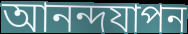
আনন্দযাপন